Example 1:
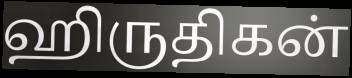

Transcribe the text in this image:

ஹிருதிகன்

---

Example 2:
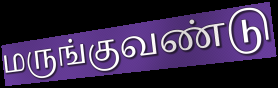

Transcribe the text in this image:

மருங்குவண்டு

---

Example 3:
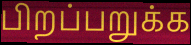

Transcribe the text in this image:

பிறப்பறுக்க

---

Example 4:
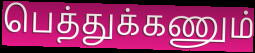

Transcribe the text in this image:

பெத்துக்கணும்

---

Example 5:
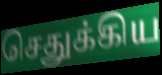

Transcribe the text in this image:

செதுக்கிய